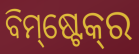
ବିମ୍‌ଷ୍ଟେକ୍‌ର